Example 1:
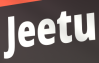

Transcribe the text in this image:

Jeetu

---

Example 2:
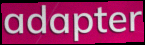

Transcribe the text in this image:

adapter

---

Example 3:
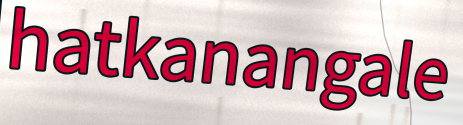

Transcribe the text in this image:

hatkanangale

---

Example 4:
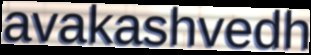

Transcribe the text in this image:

avakashvedh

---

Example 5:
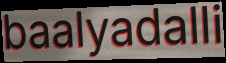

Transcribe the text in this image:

baalyadalli